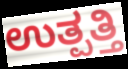
ಉತ್ಪತ್ತಿ